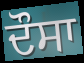
ਦੌਸਾ